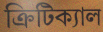
ক্রিটিক্যাল